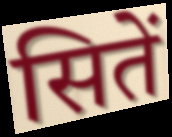
सितें